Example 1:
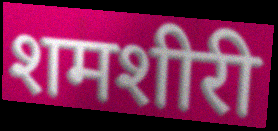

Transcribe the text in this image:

शमशीरी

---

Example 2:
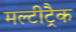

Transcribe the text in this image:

मल्टीट्रैक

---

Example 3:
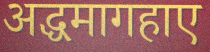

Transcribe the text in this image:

अद्धमागहाए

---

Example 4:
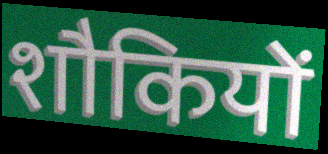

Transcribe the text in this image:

शौकियों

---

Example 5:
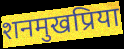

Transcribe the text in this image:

शनमुखप्रिया